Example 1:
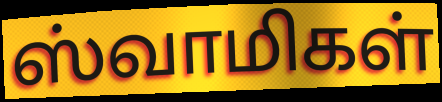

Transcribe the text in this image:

ஸ்வாமிகள்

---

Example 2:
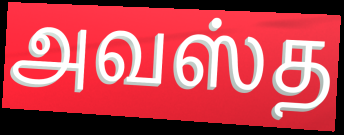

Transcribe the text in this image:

அவஸ்த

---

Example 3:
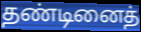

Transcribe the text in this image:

தண்டினைத்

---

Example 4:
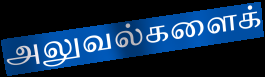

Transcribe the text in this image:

அலுவல்களைக்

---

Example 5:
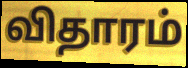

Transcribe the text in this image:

விதாரம்